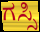
ಗಸ್ಸಿ